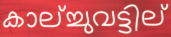
കാല്ച്ചുവട്ടില്